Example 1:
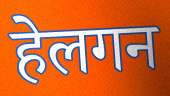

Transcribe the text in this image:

हेलगन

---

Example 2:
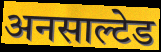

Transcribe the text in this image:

अनसाल्टेड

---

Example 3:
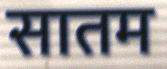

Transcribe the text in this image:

सातम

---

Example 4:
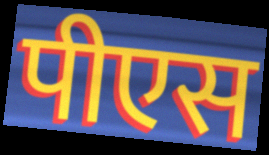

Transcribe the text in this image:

पीएस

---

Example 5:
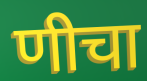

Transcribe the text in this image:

णीचा